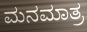
ಮನಮಾತ್ರ